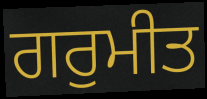
ਗਰੁਮੀਤ